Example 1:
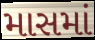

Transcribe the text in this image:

માસમાં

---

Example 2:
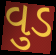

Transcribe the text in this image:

વુડ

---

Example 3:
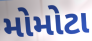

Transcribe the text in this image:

મોમોટા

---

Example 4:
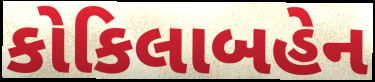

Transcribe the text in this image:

કોકિલાબહેન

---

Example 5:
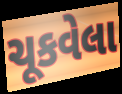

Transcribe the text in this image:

ચૂકવેલા